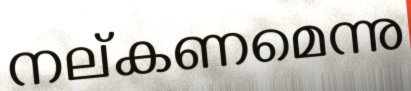
നല്‌കണമെന്നു